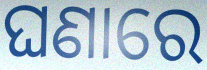
ଘଣାରେ